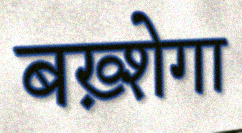
बख़्शेगा